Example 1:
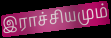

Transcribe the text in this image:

இராச்சியமும்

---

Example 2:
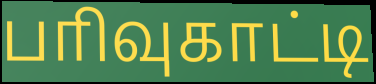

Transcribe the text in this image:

பரிவுகாட்டி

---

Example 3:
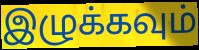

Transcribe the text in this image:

இழுக்கவும்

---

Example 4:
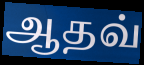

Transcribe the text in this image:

ஆதவ்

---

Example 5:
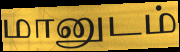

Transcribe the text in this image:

மானுடம்